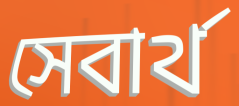
সেবার্থ